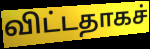
விட்டதாகச்